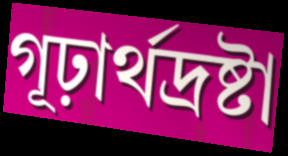
গূঢ়ার্থদ্রষ্টা